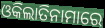
ଓକିଲାତିନାମାରେ